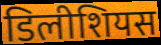
डिलीशियस